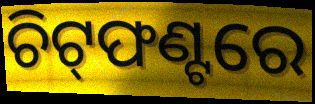
ଚିଟ୍‌ଫଣ୍ଟରେ